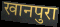
खानपुरा